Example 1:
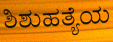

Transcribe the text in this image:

ಶಿಶುಹತ್ಯೆಯ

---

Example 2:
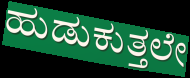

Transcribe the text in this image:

ಹುಡುಕುತ್ತಲೇ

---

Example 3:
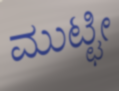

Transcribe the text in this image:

ಮುಟ್ಟೀ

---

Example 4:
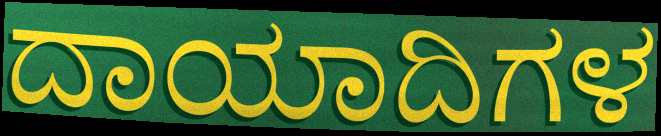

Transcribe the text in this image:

ದಾಯಾದಿಗಳ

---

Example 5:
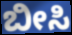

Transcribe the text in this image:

ಬೀಸಿ